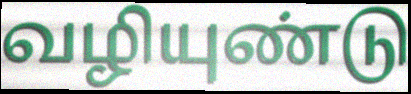
வழியுண்டு